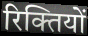
रिक्तियों